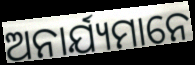
ଅନାର୍ଯ୍ୟମାନେ